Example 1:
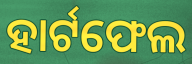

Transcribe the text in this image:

ହାର୍ଟଫେଲ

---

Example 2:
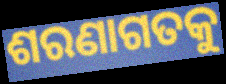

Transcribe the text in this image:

ଶରଣାଗତକୁ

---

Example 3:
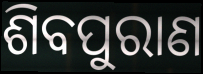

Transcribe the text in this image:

ଶିବପୁରାଣ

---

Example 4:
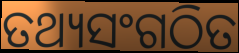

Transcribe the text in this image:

ତଥ୍ୟସଂଗଠିତ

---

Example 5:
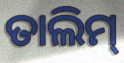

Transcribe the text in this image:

ତାଲିମ୍